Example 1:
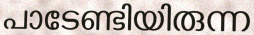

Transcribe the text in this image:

പാടേണ്ടിയിരുന്ന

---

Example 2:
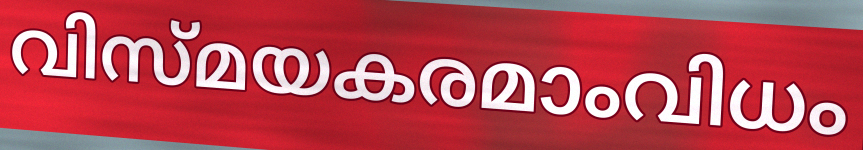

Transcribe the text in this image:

വിസ്മയകരമാംവിധം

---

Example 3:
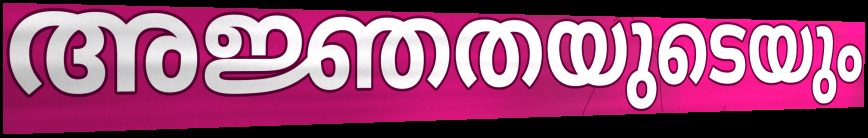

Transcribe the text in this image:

അജ്ഞതയുടെയും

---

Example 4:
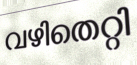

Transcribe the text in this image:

വഴിതെറ്റി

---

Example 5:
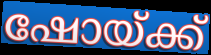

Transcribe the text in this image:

ഷോയ്ക്ക്